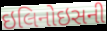
ઇલિનોઇસની